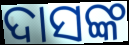
ଦାସଙ୍କ